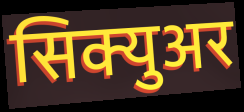
सिक्युअर